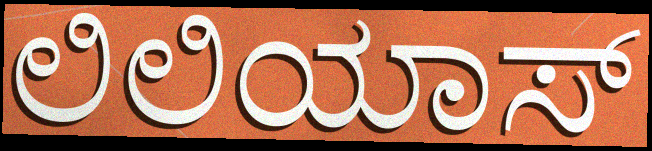
ಲಿಲಿಯಾಸ್